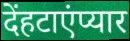
देंहटाएंप्यार